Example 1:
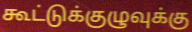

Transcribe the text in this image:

கூட்டுக்குழுவுக்கு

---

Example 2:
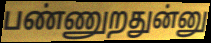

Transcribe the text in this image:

பண்ணுறதுன்னு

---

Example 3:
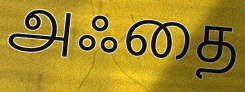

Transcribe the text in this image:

அஃதை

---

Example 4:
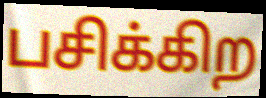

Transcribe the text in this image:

பசிக்கிற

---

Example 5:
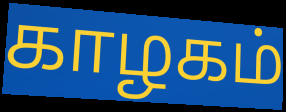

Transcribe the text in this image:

காழகம்